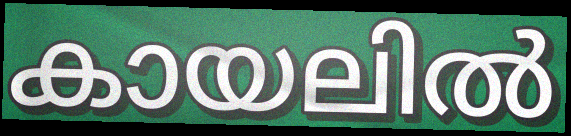
കായലിൽ